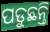
ପଡୁଛନ୍ତି